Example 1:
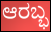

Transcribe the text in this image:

ಆರಬ್ಭ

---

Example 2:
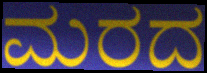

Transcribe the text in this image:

ಮರದ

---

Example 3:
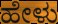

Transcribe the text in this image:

ಹೇಳು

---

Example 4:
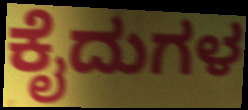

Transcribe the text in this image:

ಕೈದುಗಳ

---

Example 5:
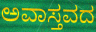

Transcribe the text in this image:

ಅವಾಸ್ತವದ